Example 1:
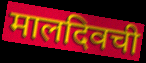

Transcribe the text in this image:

मालदिवची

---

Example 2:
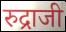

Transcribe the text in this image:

रुद्राजी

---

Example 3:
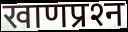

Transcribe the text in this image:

खाणप्रश्न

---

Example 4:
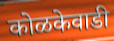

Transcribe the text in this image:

कोळकेवाडी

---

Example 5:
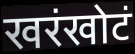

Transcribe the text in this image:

खरंखोटं